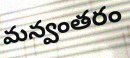
మన్వంతరం